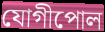
যোগীপোল